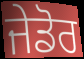
ਜੇਡੋਰ